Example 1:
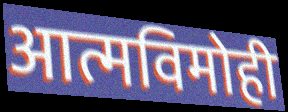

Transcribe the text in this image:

आत्मविमोही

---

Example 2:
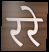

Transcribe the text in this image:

ररे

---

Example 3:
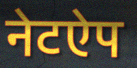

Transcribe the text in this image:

नेटऐप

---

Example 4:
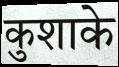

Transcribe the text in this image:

कुशाके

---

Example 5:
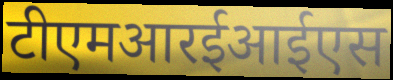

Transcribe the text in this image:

टीएमआरईआईएस